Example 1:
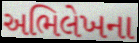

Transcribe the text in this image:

અભિલેખના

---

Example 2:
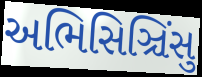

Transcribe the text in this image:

અભિસિઞ્ચિંસુ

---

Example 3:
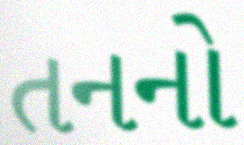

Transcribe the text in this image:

તનનો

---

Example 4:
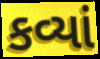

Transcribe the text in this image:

કવ્યાં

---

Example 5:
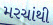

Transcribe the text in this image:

મરચાંથી